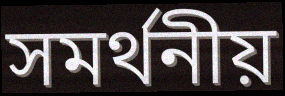
সমর্থনীয়